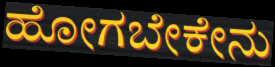
ಹೋಗಬೇಕೇನು